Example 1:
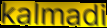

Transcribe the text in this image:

kalmadi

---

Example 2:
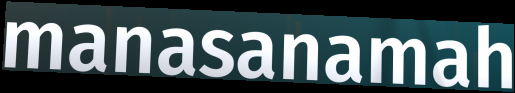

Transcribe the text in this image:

manasanamah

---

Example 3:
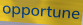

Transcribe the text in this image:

opportune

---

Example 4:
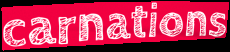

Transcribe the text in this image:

carnations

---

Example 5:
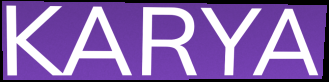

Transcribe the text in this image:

KARYA